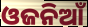
ଓଜନିଆଁ